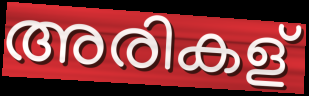
അരികള്